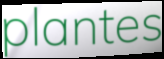
plantes